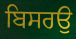
ਬਿਸਰਉ